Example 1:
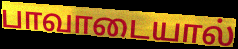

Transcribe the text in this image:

பாவாடையால்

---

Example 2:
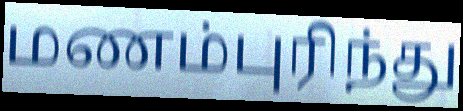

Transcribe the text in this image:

மணம்புரிந்து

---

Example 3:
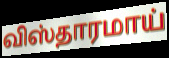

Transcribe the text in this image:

விஸ்தாரமாய்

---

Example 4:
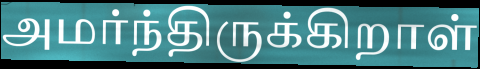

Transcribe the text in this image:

அமர்ந்திருக்கிறாள்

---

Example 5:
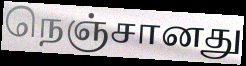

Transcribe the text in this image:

நெஞ்சானது